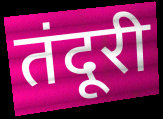
तंदूरी